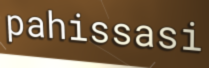
pahissasi